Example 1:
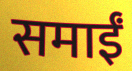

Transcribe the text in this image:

समाईं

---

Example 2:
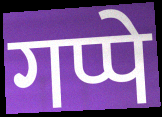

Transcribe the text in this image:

गप्पे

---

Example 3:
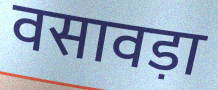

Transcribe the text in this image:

वसावड़ा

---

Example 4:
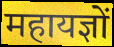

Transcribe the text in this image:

महायज्ञों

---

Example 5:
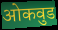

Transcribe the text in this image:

ओकवुड